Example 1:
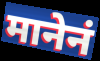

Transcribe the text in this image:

मानेनं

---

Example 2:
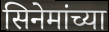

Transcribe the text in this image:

सिनेमांच्या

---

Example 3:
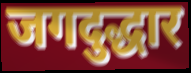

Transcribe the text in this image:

जगदुद्धार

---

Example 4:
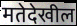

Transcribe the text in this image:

मतेदेखील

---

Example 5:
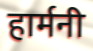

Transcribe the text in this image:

हार्मनी